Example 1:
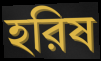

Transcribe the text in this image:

হরিষ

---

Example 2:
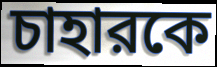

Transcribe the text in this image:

চাহারকে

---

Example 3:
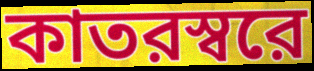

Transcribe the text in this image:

কাতরস্বরে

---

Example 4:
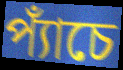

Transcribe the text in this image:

প্যাঁচে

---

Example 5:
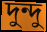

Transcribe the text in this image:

দুন্দু